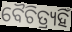
ବୈଚିତ୍ର୍ୟହିଁ